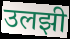
उलझी